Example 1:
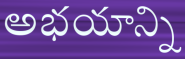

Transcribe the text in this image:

అభయాన్ని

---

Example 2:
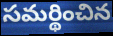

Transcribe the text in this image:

సమర్థించిన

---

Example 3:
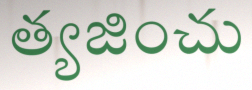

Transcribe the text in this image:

త్యజించు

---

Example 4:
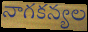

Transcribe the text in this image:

నాగకన్యల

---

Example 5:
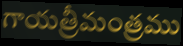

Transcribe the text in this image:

గాయత్రీమంత్రము